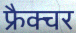
फ्रैक्चर